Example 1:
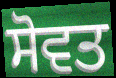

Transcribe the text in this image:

ਸੋਵਤ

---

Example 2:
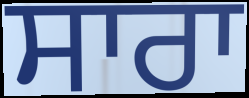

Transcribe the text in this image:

ਸਾਰਾ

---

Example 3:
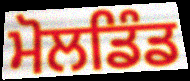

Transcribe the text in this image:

ਮੋਲਡਿੰਡ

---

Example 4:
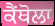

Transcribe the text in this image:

ਕੈਂਥੋਲਾ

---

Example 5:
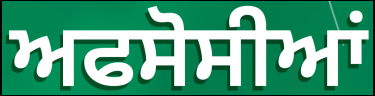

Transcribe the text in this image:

ਅਫਸੋਸੀਆਂ